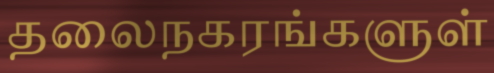
தலைநகரங்களுள்